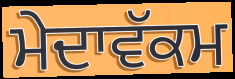
ਮੇਦਾਵੱਕਮ